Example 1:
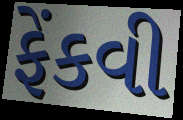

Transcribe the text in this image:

ફેંકવી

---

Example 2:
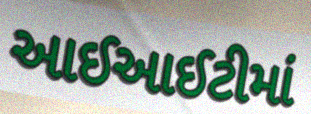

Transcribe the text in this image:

આઈઆઈટીમાં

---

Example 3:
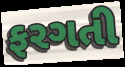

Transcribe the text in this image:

ફરગતી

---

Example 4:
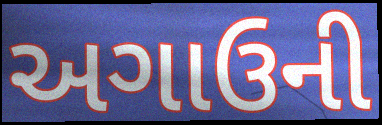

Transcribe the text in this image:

અગાઉની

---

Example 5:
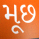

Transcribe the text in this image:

મૂછ